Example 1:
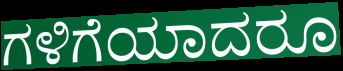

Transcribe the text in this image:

ಗಳಿಗೆಯಾದರೂ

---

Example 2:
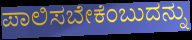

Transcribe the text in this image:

ಪಾಲಿಸಬೇಕೆಂಬುದನ್ನು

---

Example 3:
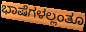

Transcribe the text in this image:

ಭಾಷೆಗಳಲ್ಲಂತೂ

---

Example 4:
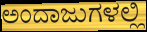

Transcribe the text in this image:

ಅಂದಾಜುಗಳಲ್ಲಿ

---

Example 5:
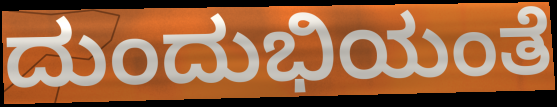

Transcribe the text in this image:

ದುಂದುಭಿಯಂತೆ